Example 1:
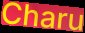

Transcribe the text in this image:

Charu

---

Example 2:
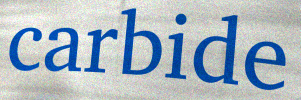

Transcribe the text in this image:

carbide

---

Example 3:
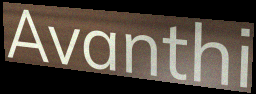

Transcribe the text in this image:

Avanthi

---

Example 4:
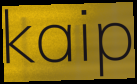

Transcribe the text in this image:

kaip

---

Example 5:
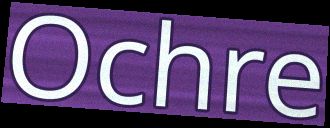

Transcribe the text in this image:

Ochre